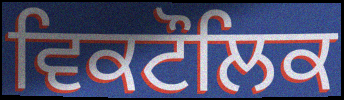
ਵਿਕਟੌਲਿਕ